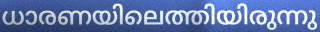
ധാരണയിലെത്തിയിരുന്നു